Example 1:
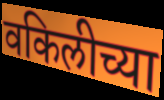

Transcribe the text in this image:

वकिलीच्या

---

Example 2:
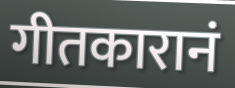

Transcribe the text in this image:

गीतकारानं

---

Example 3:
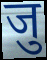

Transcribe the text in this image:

जु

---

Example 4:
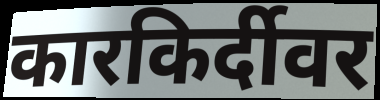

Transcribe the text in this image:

कारकिर्दीवर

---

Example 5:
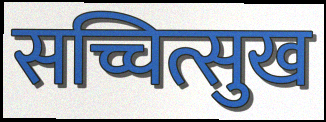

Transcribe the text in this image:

सच्चित्सुख